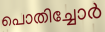
പൊതിച്ചോർ